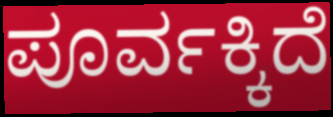
ಪೂರ್ವಕ್ಕಿದೆ